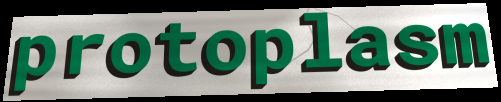
protoplasm